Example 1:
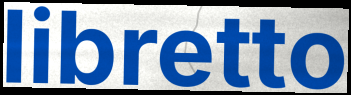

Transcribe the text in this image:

libretto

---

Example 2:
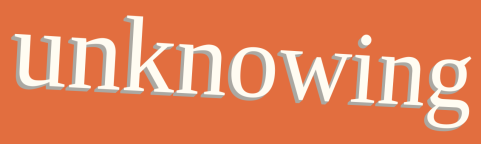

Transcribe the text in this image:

unknowing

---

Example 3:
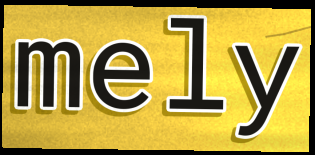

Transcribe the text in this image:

mely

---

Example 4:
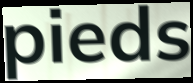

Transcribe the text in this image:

pieds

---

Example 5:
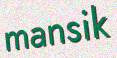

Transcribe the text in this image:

mansik